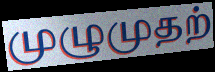
முழுமுதற்